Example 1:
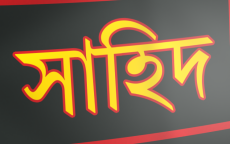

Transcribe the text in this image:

সাহিদ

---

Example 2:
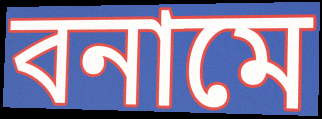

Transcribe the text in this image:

বনামে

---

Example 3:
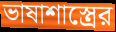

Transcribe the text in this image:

ভাষাশাস্ত্রের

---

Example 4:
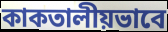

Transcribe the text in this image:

কাকতালীয়ভাবে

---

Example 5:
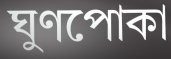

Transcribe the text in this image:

ঘুণপোকা